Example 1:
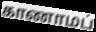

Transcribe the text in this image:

காணாமப்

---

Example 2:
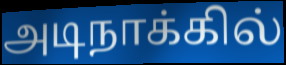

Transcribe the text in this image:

அடிநாக்கில்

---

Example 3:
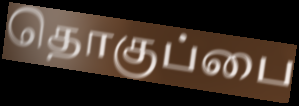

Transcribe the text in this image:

தொகுப்பை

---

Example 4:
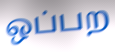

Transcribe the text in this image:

ஒப்பற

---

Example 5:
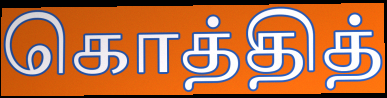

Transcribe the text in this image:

கொத்தித்